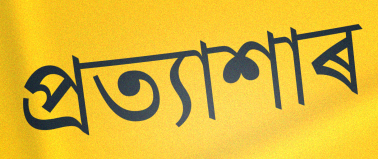
প্ৰত্যাশাৰ